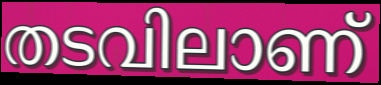
തടവിലാണ്